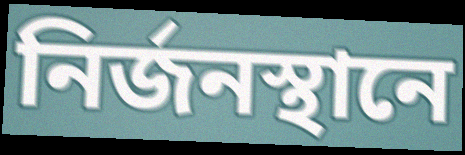
নির্জনস্থানে